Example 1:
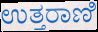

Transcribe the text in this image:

ಉತ್ತರಾಣಿ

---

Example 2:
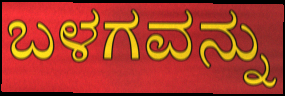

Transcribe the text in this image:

ಬಳಗವನ್ನು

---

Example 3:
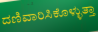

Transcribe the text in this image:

ದಣಿವಾರಿಸಿಕೊಳ್ಳುತ್ತಾ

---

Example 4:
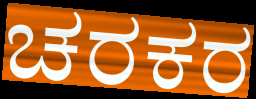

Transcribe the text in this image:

ಚರಕರ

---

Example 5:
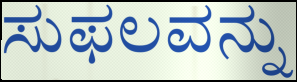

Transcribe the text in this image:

ಸುಫಲವನ್ನು